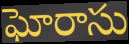
ఘోరాసు